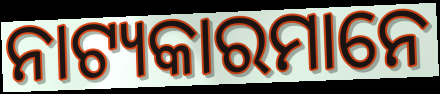
ନାଟ୍ୟକାରମାନେ